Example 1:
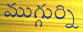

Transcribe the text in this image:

ముగ్గుర్ని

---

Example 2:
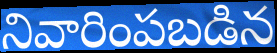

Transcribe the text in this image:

నివారింపబడిన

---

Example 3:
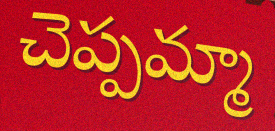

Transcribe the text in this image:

చెప్పమ్మా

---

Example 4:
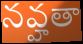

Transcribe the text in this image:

నవ్హతా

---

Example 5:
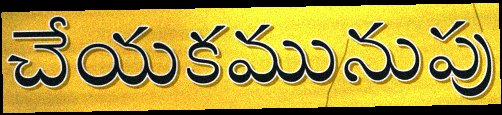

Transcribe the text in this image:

చేయకమునుపు